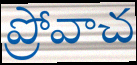
ప్రోవాచ